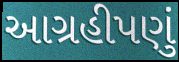
આગ્રહીપણું